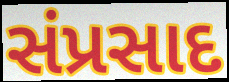
સંપ્રસાદ